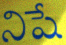
నిషే